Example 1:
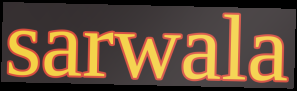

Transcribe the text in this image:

sarwala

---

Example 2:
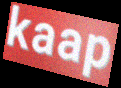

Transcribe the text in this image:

kaap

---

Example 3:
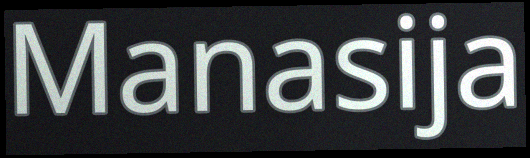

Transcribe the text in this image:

Manasija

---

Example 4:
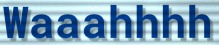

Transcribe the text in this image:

Waaahhhh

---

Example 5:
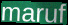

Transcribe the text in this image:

maruf